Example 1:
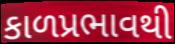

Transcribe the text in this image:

કાળપ્રભાવથી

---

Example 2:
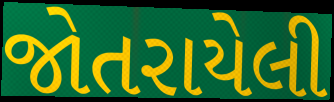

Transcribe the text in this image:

જોતરાયેલી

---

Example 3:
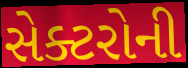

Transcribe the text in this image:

સેક્ટરોની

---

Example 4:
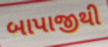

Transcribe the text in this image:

બાપાજીથી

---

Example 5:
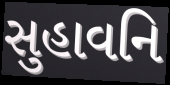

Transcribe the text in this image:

સુહાવનિ